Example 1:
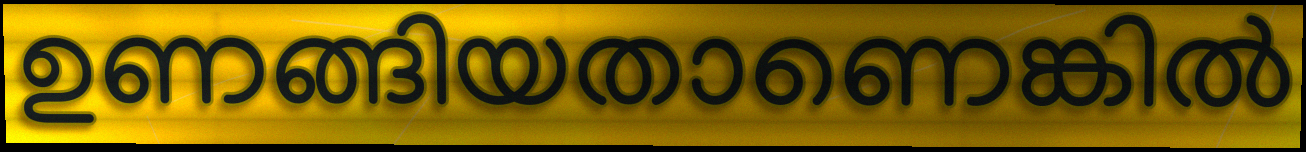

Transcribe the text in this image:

ഉണങ്ങിയതാണെങ്കിൽ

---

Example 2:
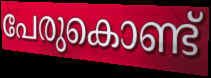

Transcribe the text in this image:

പേരുകൊണ്ട്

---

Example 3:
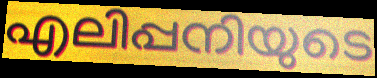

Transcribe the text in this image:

എലിപ്പനിയുടെ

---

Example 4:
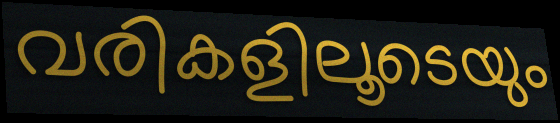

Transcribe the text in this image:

വരികളിലൂടെയും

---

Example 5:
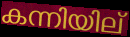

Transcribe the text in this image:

കന്നിയില്